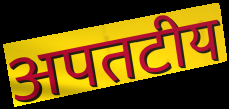
अपतटीय